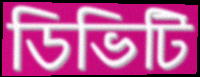
ডিভিটি